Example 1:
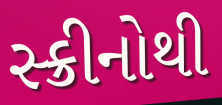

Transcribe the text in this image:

સ્ક્રીનોથી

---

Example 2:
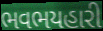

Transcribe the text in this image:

ભવભયહારી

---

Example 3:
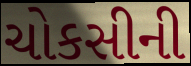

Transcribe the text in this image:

ચોકસીની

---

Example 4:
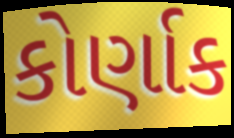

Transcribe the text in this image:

કોર્ણાક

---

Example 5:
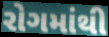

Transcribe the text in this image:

રોગમાંથી